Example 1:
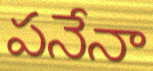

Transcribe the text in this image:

పనేనా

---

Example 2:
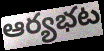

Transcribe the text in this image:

ఆర్యభట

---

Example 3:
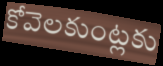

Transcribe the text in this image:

కోవెలకుంట్లకు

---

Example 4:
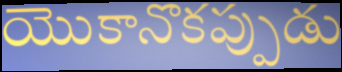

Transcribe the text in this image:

యొకానొకప్పుడు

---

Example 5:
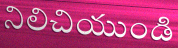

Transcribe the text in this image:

నిలిచియుండి